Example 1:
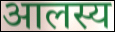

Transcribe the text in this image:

आलस्य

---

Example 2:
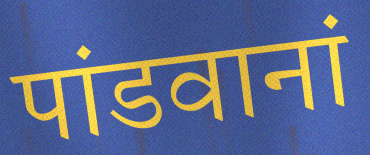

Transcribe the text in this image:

पांडवानां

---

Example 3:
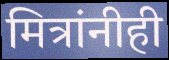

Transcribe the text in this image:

मित्रांनीही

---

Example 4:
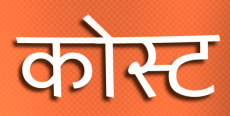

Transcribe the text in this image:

कोस्ट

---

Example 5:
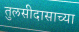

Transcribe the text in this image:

तुलसीदासाच्या